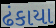
ઢંકાયા